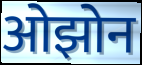
ओझोन